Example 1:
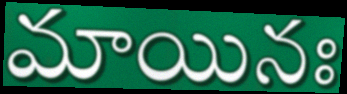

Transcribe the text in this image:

మాయినః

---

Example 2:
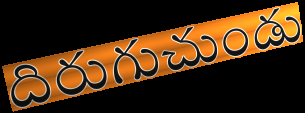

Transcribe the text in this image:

దిరుగుచుండు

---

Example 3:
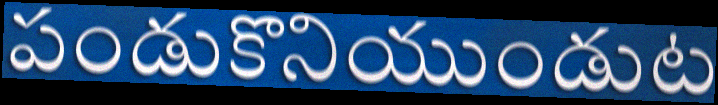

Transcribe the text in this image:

పండుకొనియుండుట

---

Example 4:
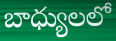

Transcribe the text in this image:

బాధ్యులలో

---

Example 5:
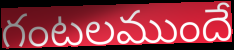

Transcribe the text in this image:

గంటలముందే